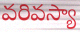
వరివస్యా